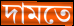
দামতে